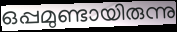
ഒപ്പമുണ്ടായിരുന്നു